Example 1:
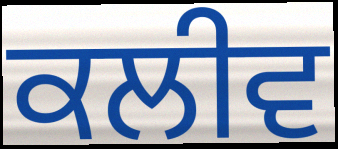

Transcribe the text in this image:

ਕਲੀਵ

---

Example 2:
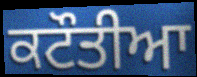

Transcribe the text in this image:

ਕਟੌਤੀਆ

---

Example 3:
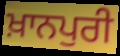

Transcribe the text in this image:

ਖ਼ਾਨਪੁਰੀ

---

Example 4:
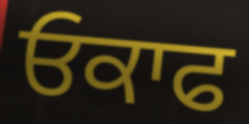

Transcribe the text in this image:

ਓਕਾਫ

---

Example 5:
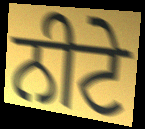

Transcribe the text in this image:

ਨੀਟੇ